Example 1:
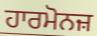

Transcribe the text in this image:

ਹਾਰਮੋਨਜ਼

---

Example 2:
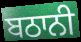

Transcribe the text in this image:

ਬਠਾਨੀ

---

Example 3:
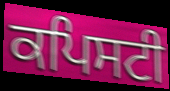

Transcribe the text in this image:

ਕਪਿਸਟੀ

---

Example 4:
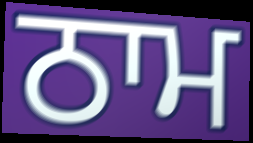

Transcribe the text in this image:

ਠਾਮ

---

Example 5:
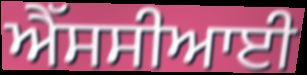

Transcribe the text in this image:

ਐੱਸਸੀਆਈ